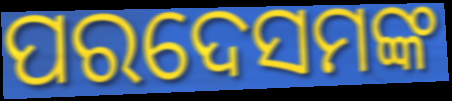
ପରଦେସମଙ୍କ